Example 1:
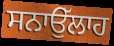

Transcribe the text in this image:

ਸਨਾਉੱਲਾਹ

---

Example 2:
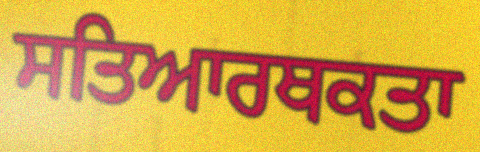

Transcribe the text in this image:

ਸਤਿਆਰਥਕਤਾ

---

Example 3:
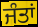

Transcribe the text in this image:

ਜੰਤਾਂ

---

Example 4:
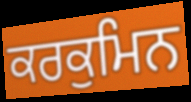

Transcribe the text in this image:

ਕਰਕੁਮਿਨ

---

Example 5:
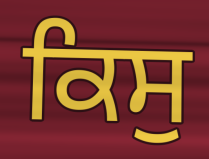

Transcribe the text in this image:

ਕਿਸੁ